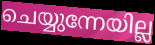
ചെയ്യുന്നേയില്ല